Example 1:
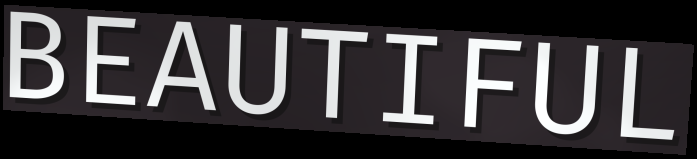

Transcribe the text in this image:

BEAUTIFUL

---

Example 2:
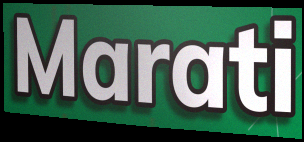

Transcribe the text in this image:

Marati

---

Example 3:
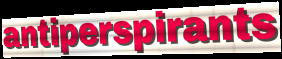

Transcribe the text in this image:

antiperspirants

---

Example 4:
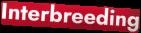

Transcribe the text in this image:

Interbreeding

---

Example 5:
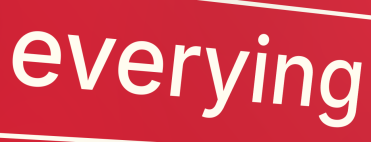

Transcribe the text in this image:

everying